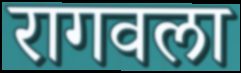
रागवला